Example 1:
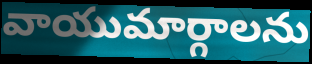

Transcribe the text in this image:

వాయుమార్గాలను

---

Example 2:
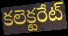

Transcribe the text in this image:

కలెక్టరేట్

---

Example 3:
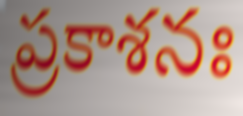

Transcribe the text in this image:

ప్రకాశనః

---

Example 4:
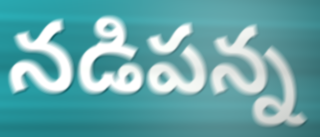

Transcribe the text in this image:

నడిపన్న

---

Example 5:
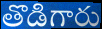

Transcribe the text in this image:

తొడిగారు